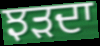
ਝੜਦਾ